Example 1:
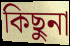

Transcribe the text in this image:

কিছুনা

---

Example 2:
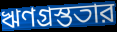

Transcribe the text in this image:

ঋণগ্রস্ততার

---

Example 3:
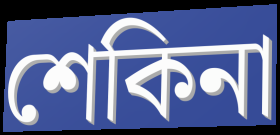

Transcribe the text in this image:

শেকিনা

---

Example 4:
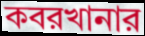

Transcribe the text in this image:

কবরখানার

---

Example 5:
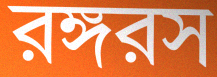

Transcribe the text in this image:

রঙ্গরস